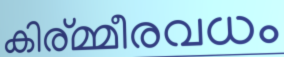
കിര്മ്മീരവധം